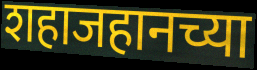
शहाजहानच्या